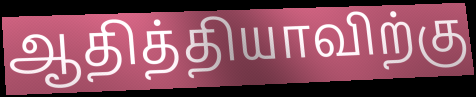
ஆதித்தியாவிற்கு